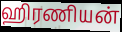
ஹிரணியன்